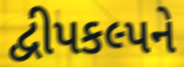
દ્વીપકલ્પને